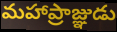
మహాప్రాజ్ఞుడు